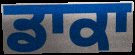
ਡਾਕਾ